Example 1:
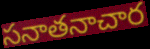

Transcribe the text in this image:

సనాతనాచార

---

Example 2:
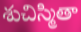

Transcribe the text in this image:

శుచిస్మితా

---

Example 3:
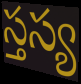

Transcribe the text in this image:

స్తస్య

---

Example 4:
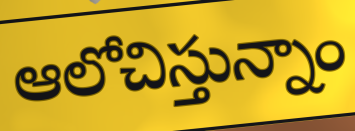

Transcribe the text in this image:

ఆలోచిస్తున్నాం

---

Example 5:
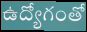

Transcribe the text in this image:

ఉద్యోగంతో